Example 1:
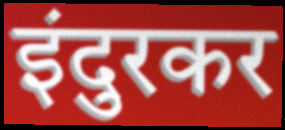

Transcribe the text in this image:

इंदुरकर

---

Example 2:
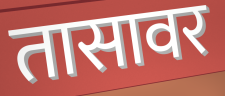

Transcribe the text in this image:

तासावर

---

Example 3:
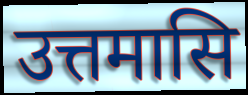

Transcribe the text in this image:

उत्तमासि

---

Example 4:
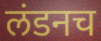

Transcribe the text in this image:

लंडनच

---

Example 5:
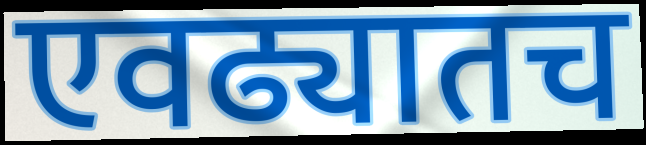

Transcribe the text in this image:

एवढ्यातच